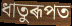
ধাতুৰূপত